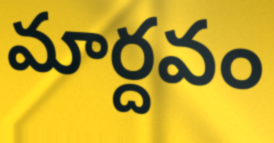
మార్దవం